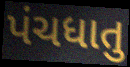
પંચધાતુ